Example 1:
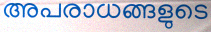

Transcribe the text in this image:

അപരാധങ്ങളുടെ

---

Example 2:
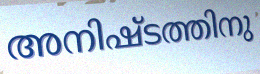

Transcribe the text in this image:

അനിഷ്ടത്തിനു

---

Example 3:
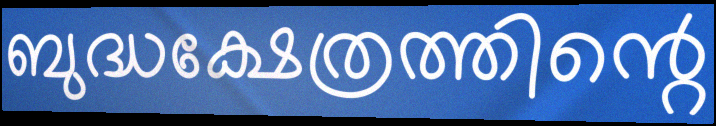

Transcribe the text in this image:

ബുദ്ധക്ഷേത്രത്തിന്റെ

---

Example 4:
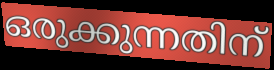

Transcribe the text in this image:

ഒരുക്കുന്നതിന്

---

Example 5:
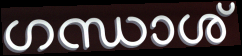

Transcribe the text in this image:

ഗന്ധാശ്